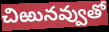
చిఱునవ్వుతో